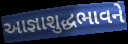
આજ્ઞાશુદ્ધભાવને